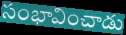
సంభావించాడు